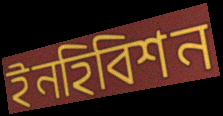
ইনহিবিশন